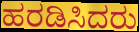
ಹರಡಿಸಿದರು